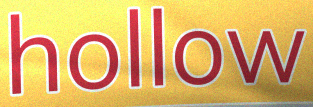
hollow